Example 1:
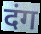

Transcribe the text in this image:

दंग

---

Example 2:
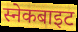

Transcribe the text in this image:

स्नेकबाइट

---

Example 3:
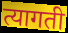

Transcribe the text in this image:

त्यागती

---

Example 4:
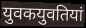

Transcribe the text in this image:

युवकयुवतियां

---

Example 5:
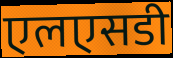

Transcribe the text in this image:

एलएसडी